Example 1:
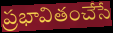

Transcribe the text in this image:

ప్రభావితంచేసే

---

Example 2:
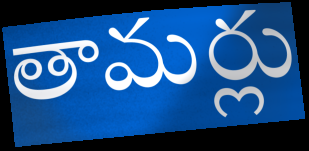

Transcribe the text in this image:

తామర్లు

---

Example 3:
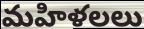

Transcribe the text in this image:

మహిళలలు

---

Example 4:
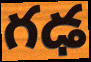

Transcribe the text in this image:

గఢ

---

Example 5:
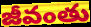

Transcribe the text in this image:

జీవంతు